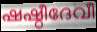
ഷഷ്ഠീദേവീ